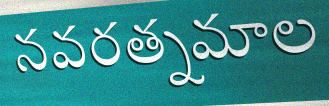
నవరత్నమాల